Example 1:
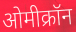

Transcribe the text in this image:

ओमीक्रॉन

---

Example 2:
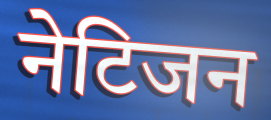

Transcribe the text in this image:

नेटिजन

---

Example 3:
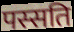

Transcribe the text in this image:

पस्सति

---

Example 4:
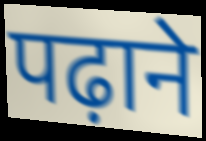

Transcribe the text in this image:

पढ़ाने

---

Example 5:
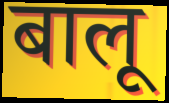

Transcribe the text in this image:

बालू